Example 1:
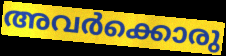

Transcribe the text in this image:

അവർക്കൊരു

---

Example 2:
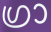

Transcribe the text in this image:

ഗ്രാ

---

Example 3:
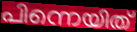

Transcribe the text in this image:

പിന്നെയിത്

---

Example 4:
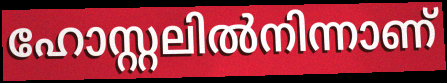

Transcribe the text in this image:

ഹോസ്റ്റലിൽനിന്നാണ്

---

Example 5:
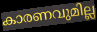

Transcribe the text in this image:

കാരണവുമില്ല